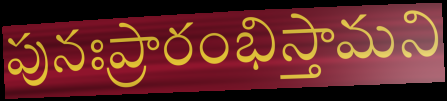
పునఃప్రారంభిస్తామని